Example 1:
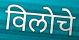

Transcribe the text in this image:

विलोचे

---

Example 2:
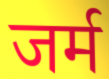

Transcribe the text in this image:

जर्म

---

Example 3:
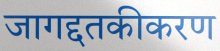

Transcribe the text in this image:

जागद्दतकीकरण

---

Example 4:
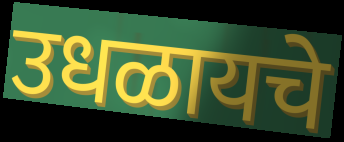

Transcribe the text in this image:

उधळायचे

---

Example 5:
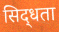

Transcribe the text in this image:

सिद्‌धता